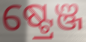
ଷ୍ଟ୍ରେଞ୍ଜ